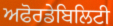
ਅਫੋਰਡੇਬਿਲਿਟੀ